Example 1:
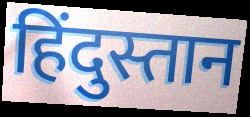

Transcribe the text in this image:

हिंदुस्‍तान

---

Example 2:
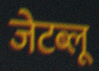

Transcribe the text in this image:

जेटब्लू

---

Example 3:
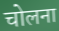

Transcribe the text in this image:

चोलना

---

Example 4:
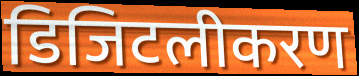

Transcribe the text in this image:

डिजिटलीकरण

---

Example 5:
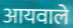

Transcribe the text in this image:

आयवाले